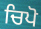
ਚਿਪੋ